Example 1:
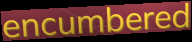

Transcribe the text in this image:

encumbered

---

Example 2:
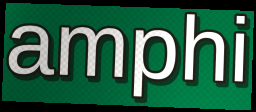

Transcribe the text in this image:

amphi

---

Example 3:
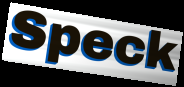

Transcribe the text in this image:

Speck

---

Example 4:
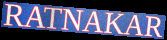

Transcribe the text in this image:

RATNAKAR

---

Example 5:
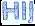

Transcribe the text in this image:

HIJ